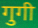
गुगी